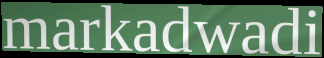
markadwadi